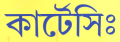
কার্টেসিঃ